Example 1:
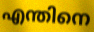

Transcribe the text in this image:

എന്തിനെ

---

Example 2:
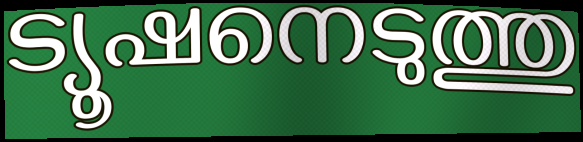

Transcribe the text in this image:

ട്യൂഷനെടുത്തു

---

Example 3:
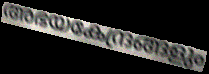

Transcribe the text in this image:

അഭയകേന്ദ്രങ്ങളും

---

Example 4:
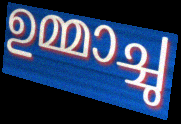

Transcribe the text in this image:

ഉമ്മാച്ചു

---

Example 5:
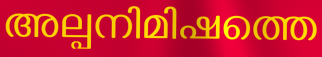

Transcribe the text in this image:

അല്പനിമിഷത്തെ